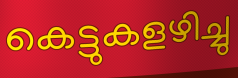
കെട്ടുകളഴിച്ചു